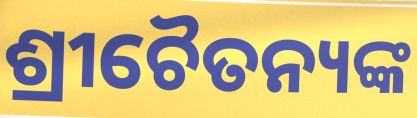
ଶ୍ରୀଚୈତନ୍ୟଙ୍କ